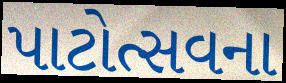
પાટોત્સવના